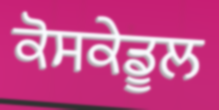
ਕੋਸਕੇਡੂਲ